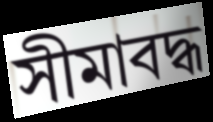
সীমাবদ্ধ